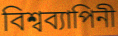
বিশ্বব্যাপিনী